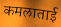
कमलाताई